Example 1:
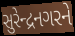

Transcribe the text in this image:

સુરેન્દ્રનગરને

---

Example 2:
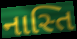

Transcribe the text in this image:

નાસ્તિ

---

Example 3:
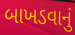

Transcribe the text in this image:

બાખડવાનું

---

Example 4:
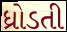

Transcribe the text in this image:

ધ્રોડતી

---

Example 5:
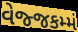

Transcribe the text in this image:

વેજ્જકમ્મં